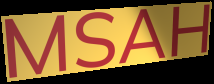
MSAH